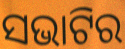
ସଭାଟିର